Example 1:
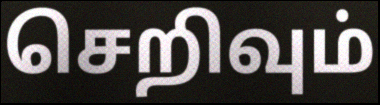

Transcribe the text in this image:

செறிவும்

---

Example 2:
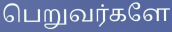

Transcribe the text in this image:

பெறுவர்களே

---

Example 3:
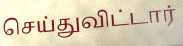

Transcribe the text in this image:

செய்துவிட்டார்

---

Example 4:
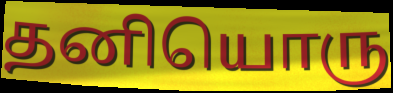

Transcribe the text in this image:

தனியொரு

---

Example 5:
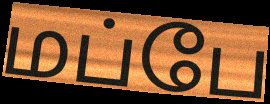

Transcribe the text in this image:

மப்பே